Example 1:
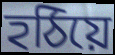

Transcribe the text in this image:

হঠিয়ে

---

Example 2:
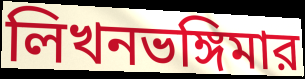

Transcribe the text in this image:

লিখনভঙ্গিমার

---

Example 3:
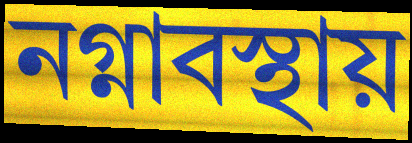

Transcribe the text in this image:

নগ্নাবস্থায়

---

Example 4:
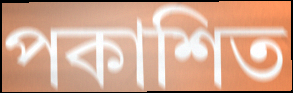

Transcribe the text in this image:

পকাশিত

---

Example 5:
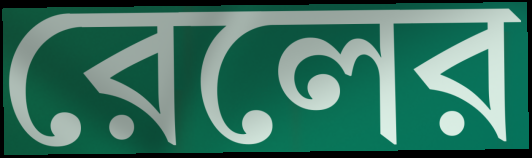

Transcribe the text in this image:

রেলের